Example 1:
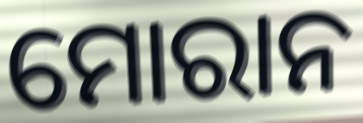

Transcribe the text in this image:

ମୋରାନ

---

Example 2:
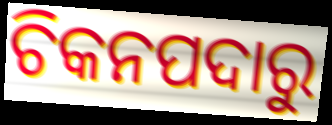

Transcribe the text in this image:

ଚିକନପଦାରୁ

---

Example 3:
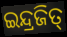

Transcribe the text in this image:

ଇନ୍ଦ୍ରଜିତ୍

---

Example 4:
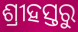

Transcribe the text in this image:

ଶ୍ରୀହସ୍ତରୁ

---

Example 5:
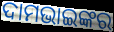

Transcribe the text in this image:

ଦାମଭାଇଙ୍କର